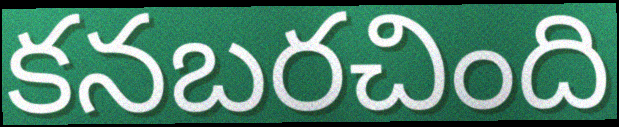
కనబరచింది